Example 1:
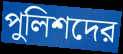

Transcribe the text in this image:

পুলিশদের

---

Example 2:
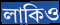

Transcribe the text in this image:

লাকিও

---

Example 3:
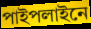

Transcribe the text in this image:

পাইপলাইনে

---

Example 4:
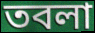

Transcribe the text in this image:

তবলা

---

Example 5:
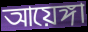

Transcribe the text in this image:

আয়েঙ্গা